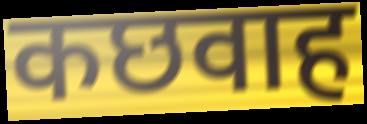
कछवाह